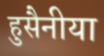
हुसैनीया